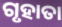
ଗୃହାତା